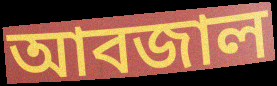
আবজাল